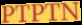
PTPTN